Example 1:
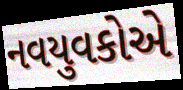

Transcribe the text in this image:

નવયુવકોએ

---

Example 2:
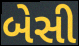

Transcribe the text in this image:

બેસી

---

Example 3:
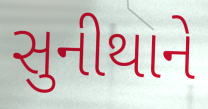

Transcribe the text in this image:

સુનીથાને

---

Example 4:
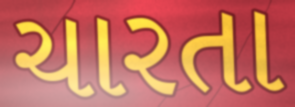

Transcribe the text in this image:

ચારતા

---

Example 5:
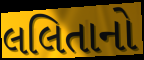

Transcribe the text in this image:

લલિતાનો